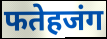
फतेहजंग